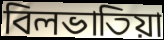
বিলভাতিয়া